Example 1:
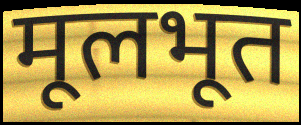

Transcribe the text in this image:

मूलभूत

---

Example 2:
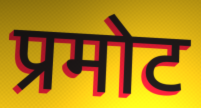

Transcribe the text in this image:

प्रमोट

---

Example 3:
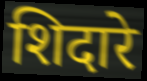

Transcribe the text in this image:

शिदारे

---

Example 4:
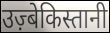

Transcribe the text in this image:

उज़्बेकिस्तानी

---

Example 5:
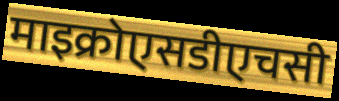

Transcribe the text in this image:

माइक्रोएसडीएचसी